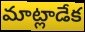
మాట్లాడేక